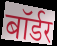
बॉर्डर